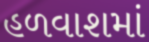
હળવાશમાં